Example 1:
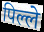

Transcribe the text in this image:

पिल्ले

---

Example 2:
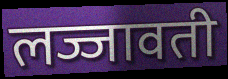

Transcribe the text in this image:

लज्जावती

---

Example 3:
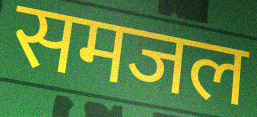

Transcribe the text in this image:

समजल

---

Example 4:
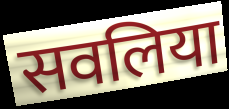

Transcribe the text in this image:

सवलिया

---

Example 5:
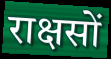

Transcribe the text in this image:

राक्षसों